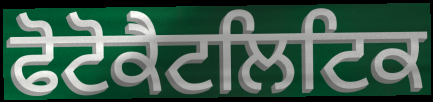
ਫੋਟੋਕੈਟਲਿਟਿਕ